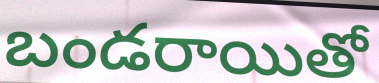
బండరాయితో